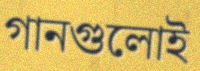
গানগুলোই